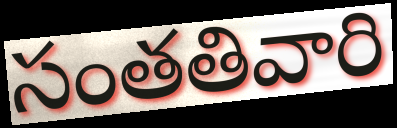
సంతతివారి